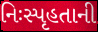
નિઃસ્પૃહતાની